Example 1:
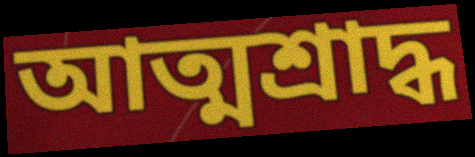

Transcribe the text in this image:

আত্মশ্রাদ্ধ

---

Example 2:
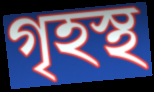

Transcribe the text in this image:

গৃহস্থ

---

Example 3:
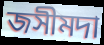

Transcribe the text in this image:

জসীমদা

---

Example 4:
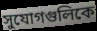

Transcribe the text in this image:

সুযোগগুলিকে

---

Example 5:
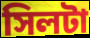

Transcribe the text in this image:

সিলটা